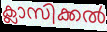
ക്ലാസിക്കൽ